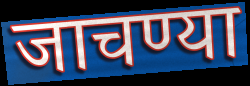
जाचण्या